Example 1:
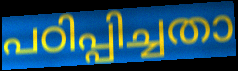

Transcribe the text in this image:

പഠിപ്പിച്ചതാ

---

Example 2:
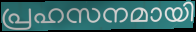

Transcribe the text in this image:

പ്രഹസനമായി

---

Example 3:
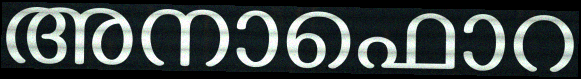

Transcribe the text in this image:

അനാഫൊറ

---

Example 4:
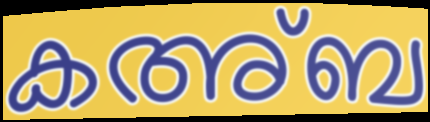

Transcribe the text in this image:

കഅ്ബ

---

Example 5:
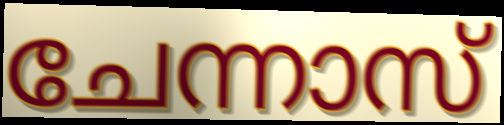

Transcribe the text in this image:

ചേന്നാസ്